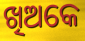
ଖିଅକେ